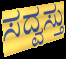
ಸದ್ವಸ್ತು